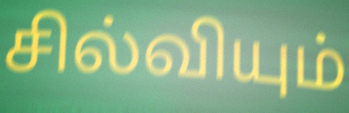
சில்வியும்